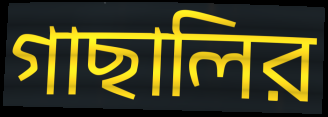
গাছালির